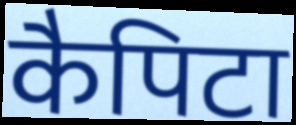
कैपिटा